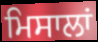
ਮਿਸਾਲਾਂ